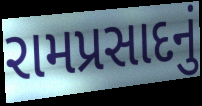
રામપ્રસાદનું